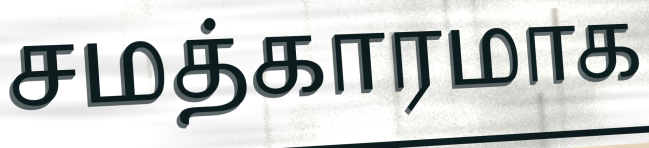
சமத்காரமாக